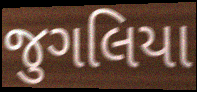
જુગલિયા